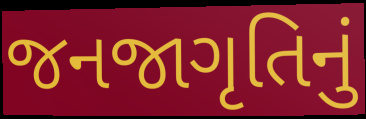
જનજાગૃતિનું